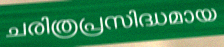
ചരിത്രപ്രസിദ്ധമായ